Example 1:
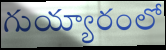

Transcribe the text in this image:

గుయ్యారంలో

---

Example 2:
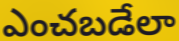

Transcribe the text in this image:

ఎంచబడేలా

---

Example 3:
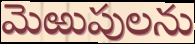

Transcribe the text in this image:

మెఱుపులను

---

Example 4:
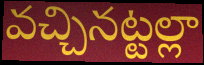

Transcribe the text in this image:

వచ్చినట్టల్లా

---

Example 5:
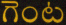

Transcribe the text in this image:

గెంట